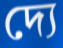
দ্যে